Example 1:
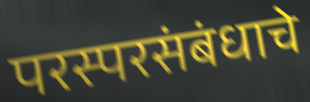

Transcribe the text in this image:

परस्परसंबंधाचे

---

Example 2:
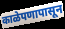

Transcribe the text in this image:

काळेपणापासून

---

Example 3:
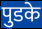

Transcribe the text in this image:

पुडके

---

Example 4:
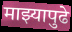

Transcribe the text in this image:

माझ्यापुढे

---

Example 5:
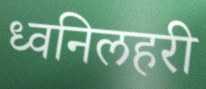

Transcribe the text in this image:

ध्वनिलहरी